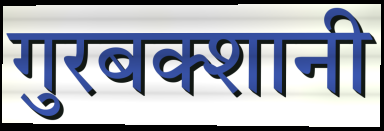
गुरबक्शानी